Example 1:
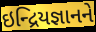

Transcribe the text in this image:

ઇન્દ્રિયજ્ઞાનને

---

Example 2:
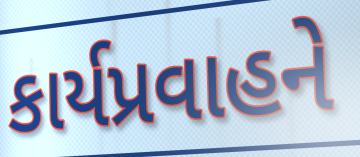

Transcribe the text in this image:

કાર્યપ્રવાહને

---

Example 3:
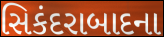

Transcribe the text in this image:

સિકંદરાબાદના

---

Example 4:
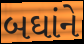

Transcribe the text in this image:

બઘાંને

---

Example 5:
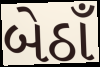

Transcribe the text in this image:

બેઠાઁ